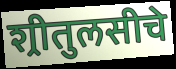
श्रीतुलसीचे